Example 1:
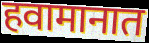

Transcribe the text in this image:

हवामानात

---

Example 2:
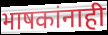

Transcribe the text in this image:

भाषकांनाही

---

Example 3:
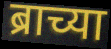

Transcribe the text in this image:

ब्राच्या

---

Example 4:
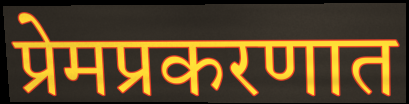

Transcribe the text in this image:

प्रेमप्रकरणात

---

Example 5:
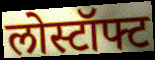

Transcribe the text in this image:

लोस्टॉफ्ट